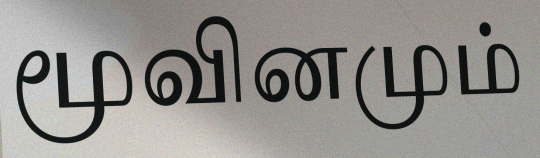
மூவினமும்